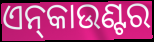
ଏନ୍‌କାଉଣ୍ଟର